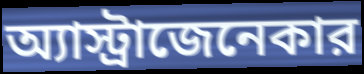
অ্যাস্ট্রাজেনেকার